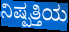
ನಿಷ್ಪತ್ತಿಯ